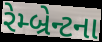
રેમ્બ્રેન્ટના